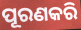
ପୂରଣକରି